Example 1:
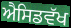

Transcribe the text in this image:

ਐਸਿਡਵੱਖ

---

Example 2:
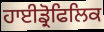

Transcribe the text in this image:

ਹਾਈਡ੍ਰੋਫਿਲਿਕ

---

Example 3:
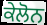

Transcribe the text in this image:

ਕੇਲੋਨ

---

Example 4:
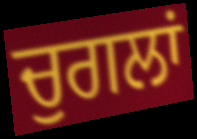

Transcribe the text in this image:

ਚੁਗਲਾਂ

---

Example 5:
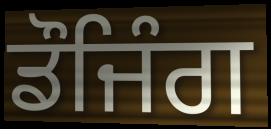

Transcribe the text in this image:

ਡੌਜਿੰਗ